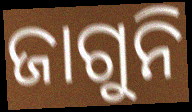
ଜାଗୁନି